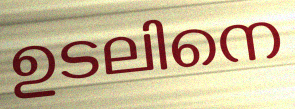
ഉടലിനെ